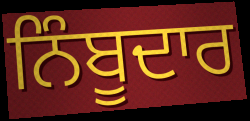
ਨਿੰਬੂਦਾਰ